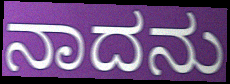
ನಾದನು